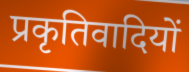
प्रकृतिवादियों